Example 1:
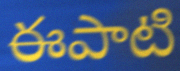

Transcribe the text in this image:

ఈపాటి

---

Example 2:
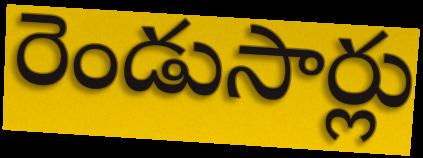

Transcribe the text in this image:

రెండుసార్లు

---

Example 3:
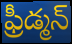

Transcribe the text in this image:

ఫ్రీడ్మన్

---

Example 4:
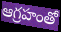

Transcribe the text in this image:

ఆగ్రహంతో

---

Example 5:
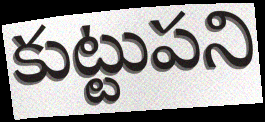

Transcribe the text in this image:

కుట్టుపని